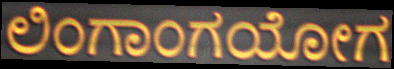
ಲಿಂಗಾಂಗಯೋಗ